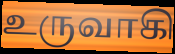
உருவாகி